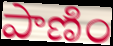
పాణిం